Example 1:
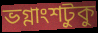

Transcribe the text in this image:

ভগ্নাংশটুকু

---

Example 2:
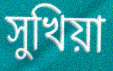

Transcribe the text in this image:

সুখিয়া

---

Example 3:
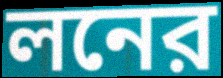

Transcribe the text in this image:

লনের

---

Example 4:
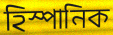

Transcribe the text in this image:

হিস্পানিক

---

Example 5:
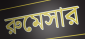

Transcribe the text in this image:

রুমেসার